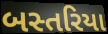
બસ્તરિયા